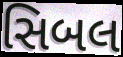
સિબલ